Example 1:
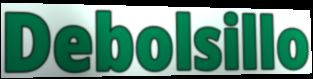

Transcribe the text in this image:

Debolsillo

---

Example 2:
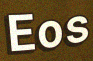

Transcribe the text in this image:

Eos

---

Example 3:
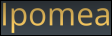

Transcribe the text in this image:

Ipomea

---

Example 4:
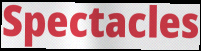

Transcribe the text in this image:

Spectacles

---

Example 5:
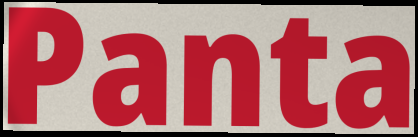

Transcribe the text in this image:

Panta